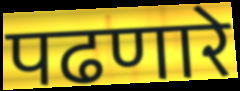
पढणारे